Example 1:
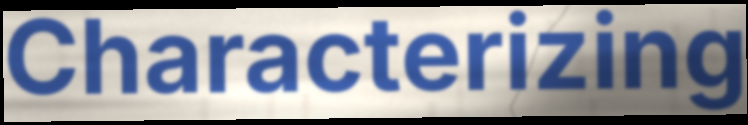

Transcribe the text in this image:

Characterizing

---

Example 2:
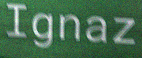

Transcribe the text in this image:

Ignaz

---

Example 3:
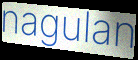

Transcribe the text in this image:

nagulan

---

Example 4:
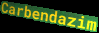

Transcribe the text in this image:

Carbendazim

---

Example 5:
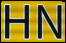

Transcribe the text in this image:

HN